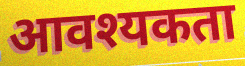
आवश्यकता